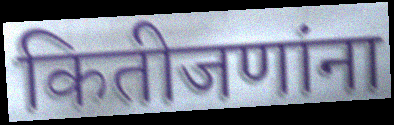
कितीजणांना